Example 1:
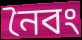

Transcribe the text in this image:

নৈবং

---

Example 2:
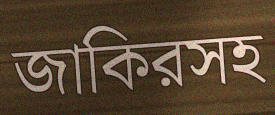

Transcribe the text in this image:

জাকিরসহ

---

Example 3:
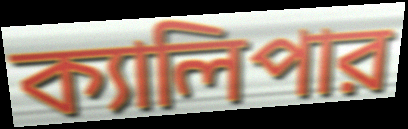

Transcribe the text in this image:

ক্যালিপার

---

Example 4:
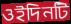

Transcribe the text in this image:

ওইদিনটি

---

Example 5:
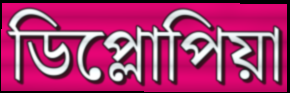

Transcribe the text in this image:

ডিপ্লোপিয়া